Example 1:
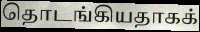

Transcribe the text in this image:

தொடங்கியதாகக்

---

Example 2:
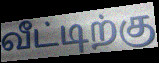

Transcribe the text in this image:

வீட்டிற்கு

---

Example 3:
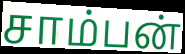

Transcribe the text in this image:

சாம்பன்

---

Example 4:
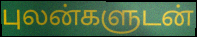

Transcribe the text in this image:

புலன்களுடன்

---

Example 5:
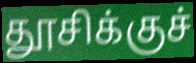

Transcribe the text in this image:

தூசிக்குச்